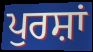
ਪੁਰਸ਼ਾਂ